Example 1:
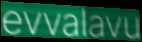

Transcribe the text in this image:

evvalavu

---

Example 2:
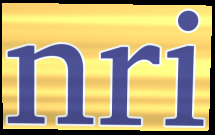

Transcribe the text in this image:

nri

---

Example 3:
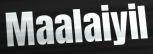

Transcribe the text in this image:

Maalaiyil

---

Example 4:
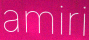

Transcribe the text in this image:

amiri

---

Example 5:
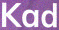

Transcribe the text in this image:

Kad